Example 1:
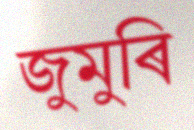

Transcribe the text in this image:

জুমুৰি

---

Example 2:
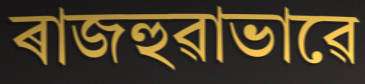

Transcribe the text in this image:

ৰাজহুৱাভাৱে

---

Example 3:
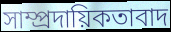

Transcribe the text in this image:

সাম্প্ৰদায়িকতাবাদ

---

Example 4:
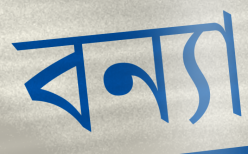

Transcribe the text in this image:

বন্যা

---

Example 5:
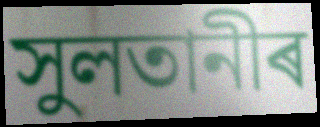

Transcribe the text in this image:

সুলতানীৰ